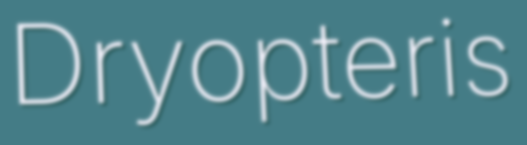
Dryopteris